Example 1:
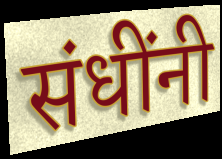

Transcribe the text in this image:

संधींनी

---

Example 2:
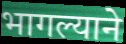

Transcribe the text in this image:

भागल्याने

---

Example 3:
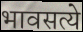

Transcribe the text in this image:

भावसत्ये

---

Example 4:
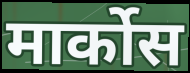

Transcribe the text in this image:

मार्कोस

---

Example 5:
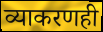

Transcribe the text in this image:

व्याकरणही